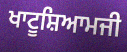
ਖਾਟੂਸ਼ਿਆਮਜੀ